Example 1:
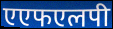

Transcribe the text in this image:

एएफएलपी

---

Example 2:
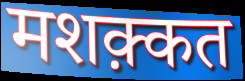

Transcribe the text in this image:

मशक़्कत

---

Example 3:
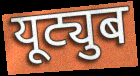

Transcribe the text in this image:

यूट्युब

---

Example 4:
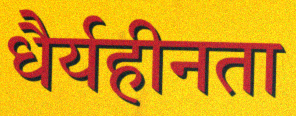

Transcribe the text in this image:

धैर्यहीनता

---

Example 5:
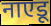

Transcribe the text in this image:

नाएडू